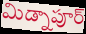
మిడ్నాపూర్